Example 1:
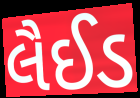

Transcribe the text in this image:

લૈઈડ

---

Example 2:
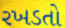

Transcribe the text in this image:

રખડતો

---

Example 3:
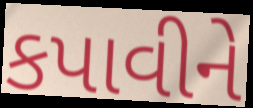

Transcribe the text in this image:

કપાવીને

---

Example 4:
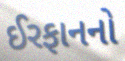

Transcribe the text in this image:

ઈરફાનનો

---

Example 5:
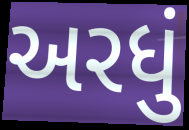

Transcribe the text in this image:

અરધું